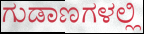
ಗುಡಾಣಗಳಲ್ಲಿ